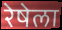
रेषेला